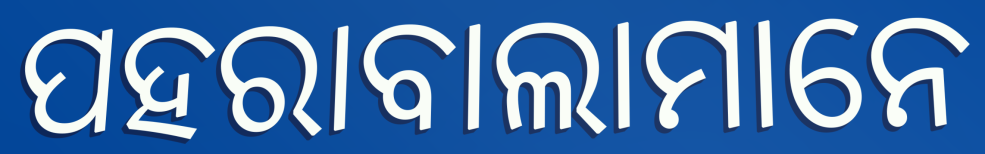
ପହରାବାଲାମାନେ